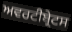
ਅਵਰਟੀਬ੍ਰੇਟਸ